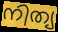
നിത്യ